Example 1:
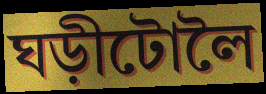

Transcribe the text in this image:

ঘড়ীটোলৈ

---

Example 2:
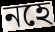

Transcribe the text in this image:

নহে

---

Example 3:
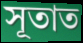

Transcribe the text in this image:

সূতাত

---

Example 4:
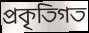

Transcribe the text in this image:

প্ৰকৃতিগত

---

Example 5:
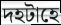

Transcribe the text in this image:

দহটাহে